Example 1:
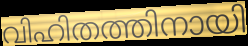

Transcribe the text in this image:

വിഹിതത്തിനായി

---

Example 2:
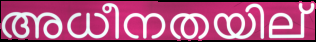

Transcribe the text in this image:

അധീനതയില്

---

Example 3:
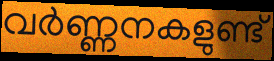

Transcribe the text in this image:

വർണ്ണനകളുണ്ട്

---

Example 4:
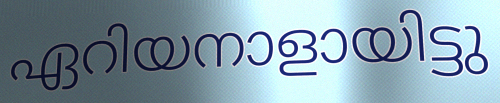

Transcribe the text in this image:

ഏറിയനാളായിട്ടു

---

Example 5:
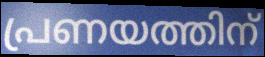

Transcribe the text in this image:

പ്രണയത്തിന്